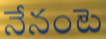
నేనంటె